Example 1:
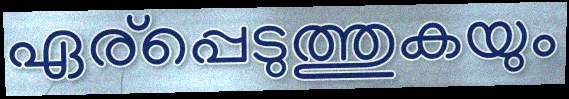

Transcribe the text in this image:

ഏര്പ്പെടുത്തുകയും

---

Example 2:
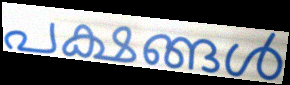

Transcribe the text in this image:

പക്ഷങ്ങൾ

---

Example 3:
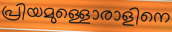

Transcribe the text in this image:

പ്രിയമുള്ളൊരാളിനെ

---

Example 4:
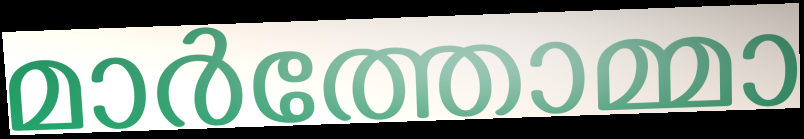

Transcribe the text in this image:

മാർത്തോമ്മാ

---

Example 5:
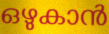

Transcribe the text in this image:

ഒഴുകാൻ